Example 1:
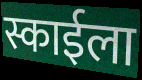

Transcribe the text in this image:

स्काईला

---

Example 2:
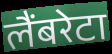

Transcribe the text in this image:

लैंबरेटा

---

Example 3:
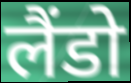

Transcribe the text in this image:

लैंडो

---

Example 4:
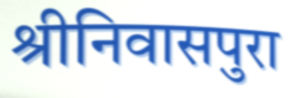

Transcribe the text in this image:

श्रीनिवासपुरा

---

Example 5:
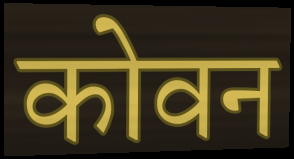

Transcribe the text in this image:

कोवन